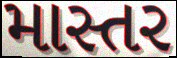
માસ્તર